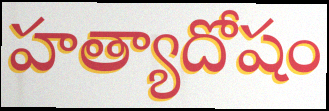
హత్యాదోషం